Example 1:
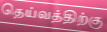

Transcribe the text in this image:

தெய்வத்திற்கு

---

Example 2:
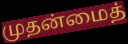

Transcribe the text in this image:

முதன்மைத்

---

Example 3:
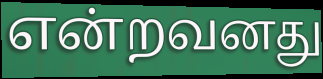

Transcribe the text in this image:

என்றவனது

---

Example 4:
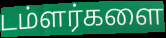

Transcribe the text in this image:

டம்ளர்களை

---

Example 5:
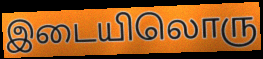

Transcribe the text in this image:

இடையிலொரு